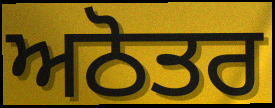
ਅਠੋਤਰ